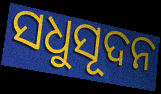
ସଧୁସୂଦନ